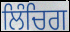
ਲਿੰਚਿਗ